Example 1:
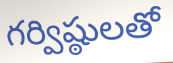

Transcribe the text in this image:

గర్విష్ఠులతో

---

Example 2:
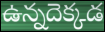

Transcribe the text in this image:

ఉన్నదెక్కడ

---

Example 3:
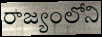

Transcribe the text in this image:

రాజ్యంలోని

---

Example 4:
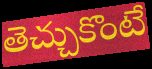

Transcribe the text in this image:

తెచ్చుకొంటే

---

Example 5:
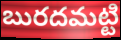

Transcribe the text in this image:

బురదమట్టి